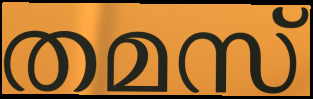
തമസ്